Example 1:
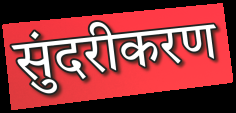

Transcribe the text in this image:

सुंदरीकरण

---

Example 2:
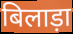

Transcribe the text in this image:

बिलाड़ा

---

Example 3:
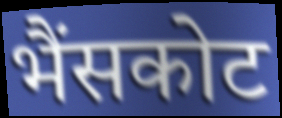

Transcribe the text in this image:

भैंसकोट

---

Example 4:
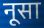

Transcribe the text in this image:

नूसा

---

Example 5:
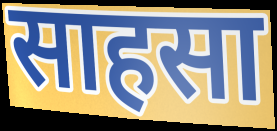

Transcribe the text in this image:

साहसा